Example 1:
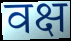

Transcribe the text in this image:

वक्ष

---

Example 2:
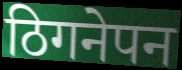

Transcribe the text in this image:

ठिगनेपन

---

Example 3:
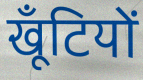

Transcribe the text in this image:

खूँटियों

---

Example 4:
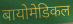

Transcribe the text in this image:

बायोमेडिकल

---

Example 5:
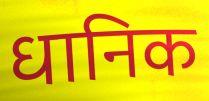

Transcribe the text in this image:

धानिक